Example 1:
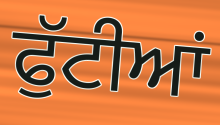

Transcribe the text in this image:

ਫੁੱਟੀਆਂ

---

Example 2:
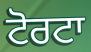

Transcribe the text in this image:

ਟੋਰਟਾ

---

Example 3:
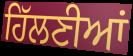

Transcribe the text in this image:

ਹਿੱਲਣੀਆਂ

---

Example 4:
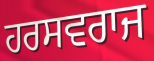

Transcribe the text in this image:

ਹਰਸਵਰਾਜ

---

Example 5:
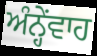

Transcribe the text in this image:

ਅੰਨ੍ਹੇਂਵਾਹ